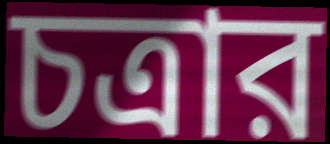
চত্রার